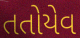
તતોયેવ